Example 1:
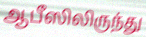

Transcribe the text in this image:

ஆபீஸிலிருந்து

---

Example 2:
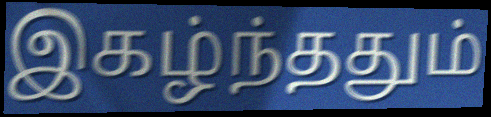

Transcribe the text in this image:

இகழ்ந்ததும்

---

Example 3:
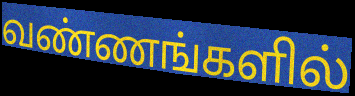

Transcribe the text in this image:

வண்ணங்களில்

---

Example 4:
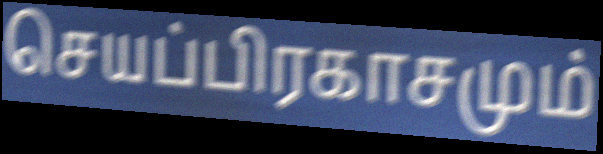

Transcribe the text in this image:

செயப்பிரகாசமும்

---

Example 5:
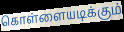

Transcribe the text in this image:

கொள்ளையடிக்கும்